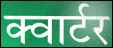
क्वार्टर